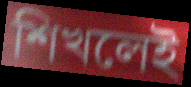
শিখলেই